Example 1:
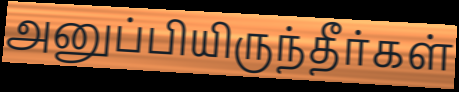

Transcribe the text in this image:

அனுப்பியிருந்தீர்கள்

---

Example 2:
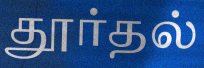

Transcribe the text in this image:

தூர்தல்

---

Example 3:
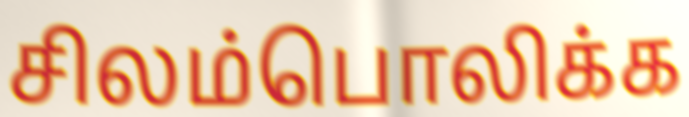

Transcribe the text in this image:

சிலம்பொலிக்க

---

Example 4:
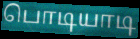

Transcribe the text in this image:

பொடியாடி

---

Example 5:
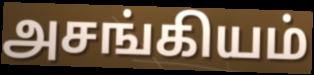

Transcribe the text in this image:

அசங்கியம்